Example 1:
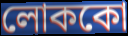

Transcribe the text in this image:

লোককো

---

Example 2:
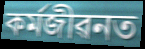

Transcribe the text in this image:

কৰ্মজীৱনত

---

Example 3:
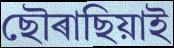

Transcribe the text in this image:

ছৌৰাছিয়াই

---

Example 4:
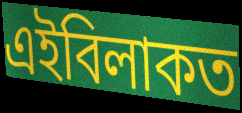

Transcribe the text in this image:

এইবিলাকত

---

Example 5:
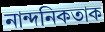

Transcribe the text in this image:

নান্দনিকতাক